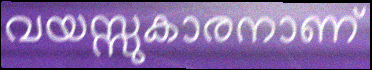
വയസ്സുകാരനാണ്